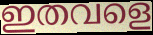
ഇതവളെ